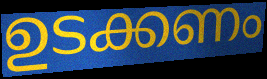
ഉടക്കണം